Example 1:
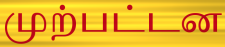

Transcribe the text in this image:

முற்பட்டன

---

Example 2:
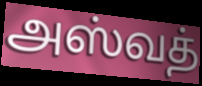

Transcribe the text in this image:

அஸ்வத்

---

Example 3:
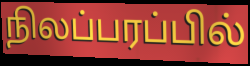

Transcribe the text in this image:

நிலப்பரப்பில்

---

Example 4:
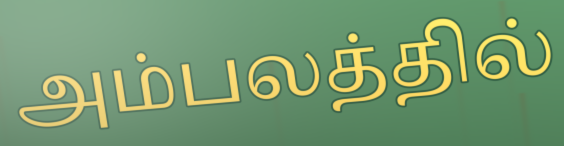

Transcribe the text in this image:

அம்பலத்தில்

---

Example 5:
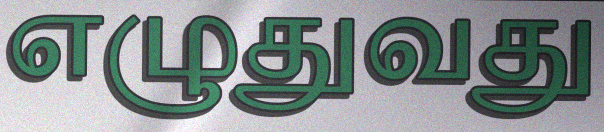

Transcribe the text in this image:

எழுதுவது